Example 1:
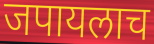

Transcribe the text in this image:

जपायलाच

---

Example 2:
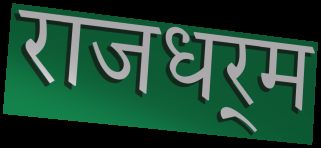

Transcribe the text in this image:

राजधर्म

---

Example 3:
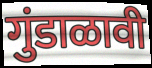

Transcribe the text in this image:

गुंडाळावी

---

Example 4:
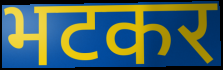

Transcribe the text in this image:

भटकर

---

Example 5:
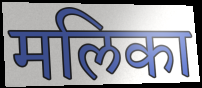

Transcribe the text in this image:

मलिका